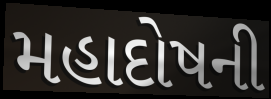
મહાદોષની